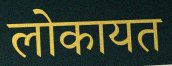
लोकायत